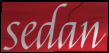
sedan